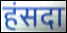
हंसदा